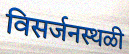
विसर्जनस्थळी